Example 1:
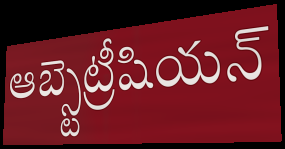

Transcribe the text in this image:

ఆబ్స్టెట్రీషియన్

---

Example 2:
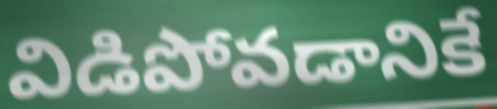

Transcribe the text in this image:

విడిపోవడానికే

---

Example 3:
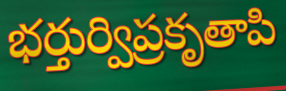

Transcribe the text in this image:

భర్తుర్విప్రకృతాపి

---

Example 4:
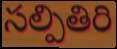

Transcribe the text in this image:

సల్పితిరి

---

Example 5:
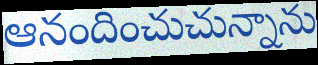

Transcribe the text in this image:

ఆనందించుచున్నాను